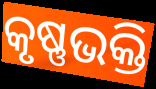
କୃଷ୍ଣଭକ୍ତି